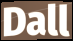
Dall